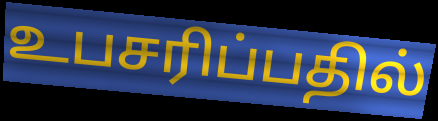
உபசரிப்பதில்